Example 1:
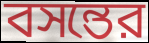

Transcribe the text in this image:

বসন্তের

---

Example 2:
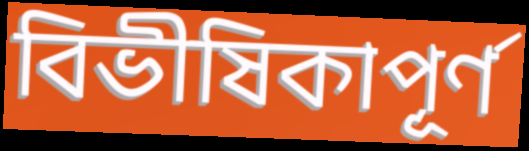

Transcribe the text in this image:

বিভীষিকাপূর্ণ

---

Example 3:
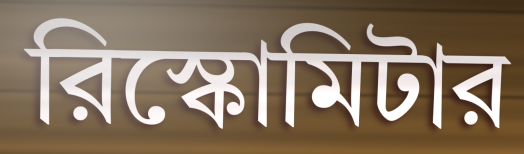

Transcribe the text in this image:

রিস্কোমিটার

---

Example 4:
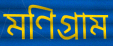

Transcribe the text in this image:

মণিগ্রাম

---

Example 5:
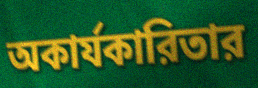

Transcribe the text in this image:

অকার্যকারিতার